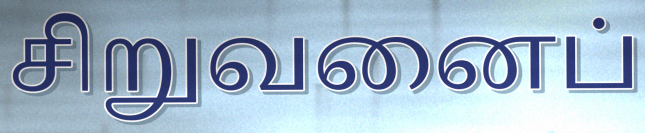
சிறுவனைப்